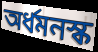
অর্ধমনস্ক